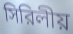
সিরিলীয়